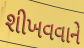
શીખવવાને